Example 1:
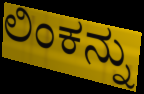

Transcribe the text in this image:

ಲಿಂಕನ್ನು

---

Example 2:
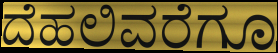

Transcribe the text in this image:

ದೆಹಲಿವರೆಗೂ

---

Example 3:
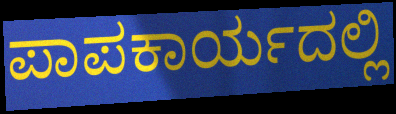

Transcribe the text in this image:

ಪಾಪಕಾರ್ಯದಲ್ಲಿ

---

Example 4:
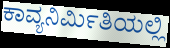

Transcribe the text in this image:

ಕಾವ್ಯನಿರ್ಮಿತಿಯಲ್ಲಿ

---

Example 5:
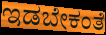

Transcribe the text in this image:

ಇಡಬೇಕಂತೆ